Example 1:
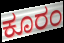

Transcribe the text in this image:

ಕೂರಂ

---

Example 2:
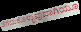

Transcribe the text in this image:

ತೆಗೆದುಕೊಳ್ಳುವುದಾಗಿಯೂ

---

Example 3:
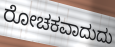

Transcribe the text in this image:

ರೋಚಕವಾದುದು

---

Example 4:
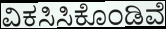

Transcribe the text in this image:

ವಿಕಸಿಸಿಕೊಂಡಿವೆ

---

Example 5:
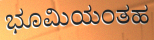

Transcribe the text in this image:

ಭೂಮಿಯಂತಹ